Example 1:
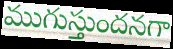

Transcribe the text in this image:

ముగుస్తుందనగా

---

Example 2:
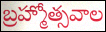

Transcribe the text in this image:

బ్రహ్మోత్సవాల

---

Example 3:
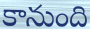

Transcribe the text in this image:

కానుంది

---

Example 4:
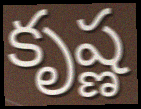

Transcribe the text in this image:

కృష్ణ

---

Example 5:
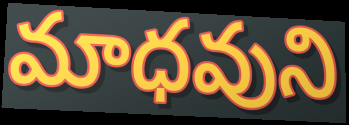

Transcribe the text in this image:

మాధవుని